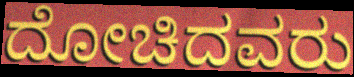
ದೋಚಿದವರು